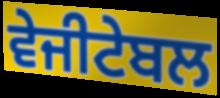
ਵੇਜੀਟੇਬਲ